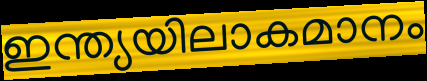
ഇന്ത്യയിലാകമാനം